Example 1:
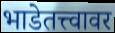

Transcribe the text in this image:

भाडेतत्त्वावर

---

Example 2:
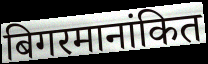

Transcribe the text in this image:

बिगरमानांकित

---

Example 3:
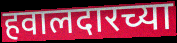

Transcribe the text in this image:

हवालदारच्या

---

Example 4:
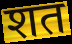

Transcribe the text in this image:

शत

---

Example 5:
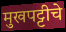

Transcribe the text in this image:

मुखपट्टीचे